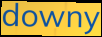
downy